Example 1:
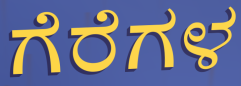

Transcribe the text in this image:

ಗೆರೆಗಳ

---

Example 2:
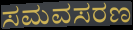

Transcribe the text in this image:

ಸಮವಸರಣ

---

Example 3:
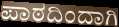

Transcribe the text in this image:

ಪಾಠದಿಂದಾಗಿ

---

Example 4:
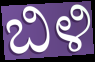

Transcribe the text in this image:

ಬಿಳಿ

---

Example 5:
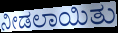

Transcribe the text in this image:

ನೀಡಲಾಯಿತು